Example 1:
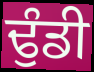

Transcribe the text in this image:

ਢੁੰਡੀ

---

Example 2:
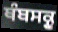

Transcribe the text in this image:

ਥੰਬਸਕ੍ਰੂ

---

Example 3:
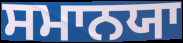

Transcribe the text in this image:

ਸਮਾਨਯਾ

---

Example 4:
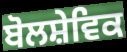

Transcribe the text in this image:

ਬੋਲਸ਼ੇਵਿਕ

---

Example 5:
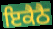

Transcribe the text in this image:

ਇਕੈਠੈ